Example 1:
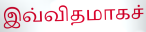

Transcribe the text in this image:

இவ்விதமாகச்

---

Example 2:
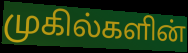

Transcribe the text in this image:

முகில்களின்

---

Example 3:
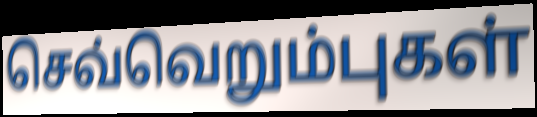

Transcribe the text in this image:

செவ்வெறும்புகள்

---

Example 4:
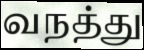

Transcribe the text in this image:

வநத்து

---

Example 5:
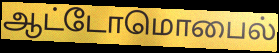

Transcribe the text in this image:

ஆட்டோமொபைல்